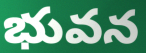
భువన